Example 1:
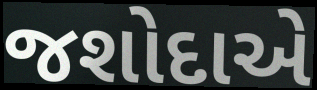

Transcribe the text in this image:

જશોદાએ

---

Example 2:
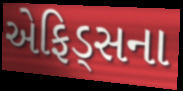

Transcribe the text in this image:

એફિડ્સના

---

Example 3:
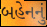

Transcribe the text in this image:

બહેનનું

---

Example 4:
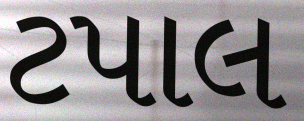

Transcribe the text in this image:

ટપાલ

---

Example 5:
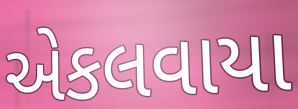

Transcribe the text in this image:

એકલવાયા